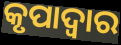
କୃପାଦ୍ଵାର